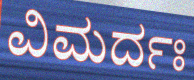
ವಿಮರ್ದಃ